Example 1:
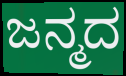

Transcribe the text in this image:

ಜನ್ಮದ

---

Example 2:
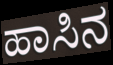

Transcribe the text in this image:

ಹಾಸಿನ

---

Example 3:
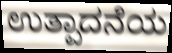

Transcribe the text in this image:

ಉತ್ಪಾದನೆಯ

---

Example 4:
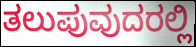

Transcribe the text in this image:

ತಲುಪುವುದರಲ್ಲಿ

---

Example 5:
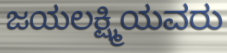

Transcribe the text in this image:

ಜಯಲಕ್ಷ್ಮಿಯವರು